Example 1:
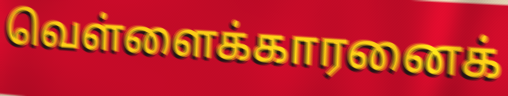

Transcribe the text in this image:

வெள்ளைக்காரனைக்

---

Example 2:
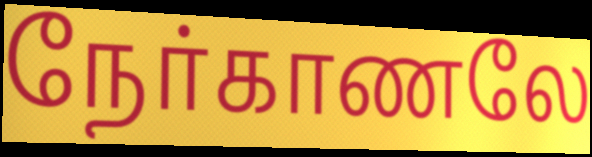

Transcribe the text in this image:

நேர்காணலே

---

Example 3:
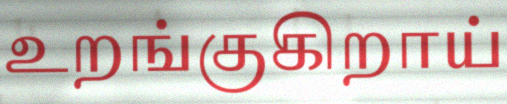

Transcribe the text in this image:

உறங்குகிறாய்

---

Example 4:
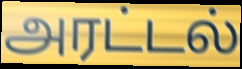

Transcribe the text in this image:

அரட்டல்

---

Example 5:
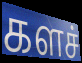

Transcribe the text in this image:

களச்